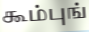
கூம்புங்